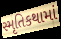
સ્મૃતિકથામાં